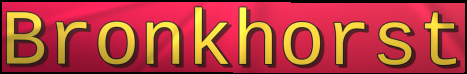
Bronkhorst